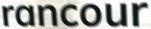
rancour